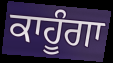
ਕਾਹੂੰਗਾ